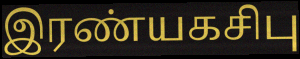
இரண்யகசிபு